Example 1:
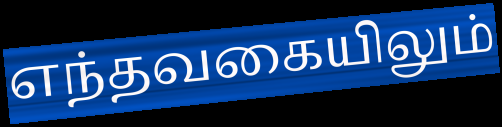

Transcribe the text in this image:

எந்தவகையிலும்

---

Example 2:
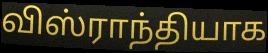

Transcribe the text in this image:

விஸ்ராந்தியாக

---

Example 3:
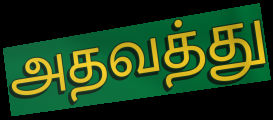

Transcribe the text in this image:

அதவத்து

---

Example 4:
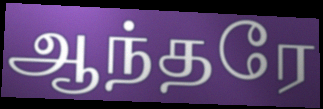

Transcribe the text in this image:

ஆந்தரே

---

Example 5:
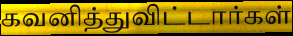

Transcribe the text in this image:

கவனித்துவிட்டார்கள்